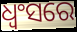
ଧ୍ୱଂସରେ